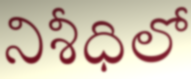
నిశీధిలో